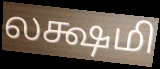
லக்ஷமி